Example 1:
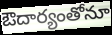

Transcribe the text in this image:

ఔదార్యంతోనూ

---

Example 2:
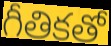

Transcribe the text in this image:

గీతికతో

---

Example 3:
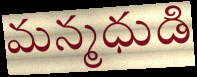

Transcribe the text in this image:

మన్మధుడి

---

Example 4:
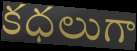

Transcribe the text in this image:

కధలుగా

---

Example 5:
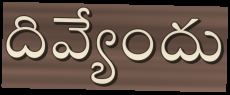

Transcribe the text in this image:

దివ్యేందు